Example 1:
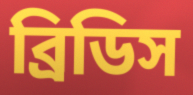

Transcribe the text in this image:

ব্রিডিস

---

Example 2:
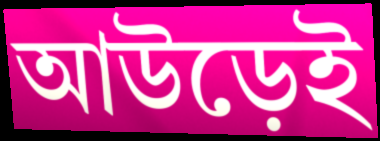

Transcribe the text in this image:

আউড়েই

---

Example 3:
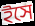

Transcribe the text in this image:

ইসে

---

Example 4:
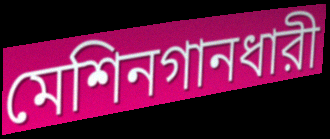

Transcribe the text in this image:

মেশিনগানধারী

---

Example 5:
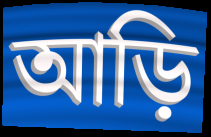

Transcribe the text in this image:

আড়ি